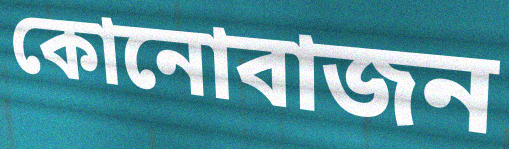
কোনোবাজন